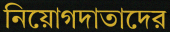
নিয়োগদাতাদের